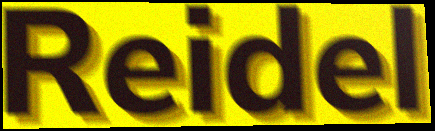
Reidel